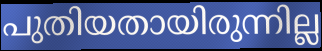
പുതിയതായിരുന്നില്ല